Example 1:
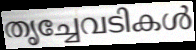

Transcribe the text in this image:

തൃച്ചേവടികൾ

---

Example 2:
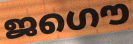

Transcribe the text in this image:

ജഗൌ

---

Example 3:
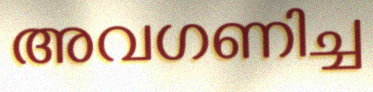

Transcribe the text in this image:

അവഗണിച്ച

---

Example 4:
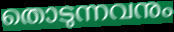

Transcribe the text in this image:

തൊടുന്നവനും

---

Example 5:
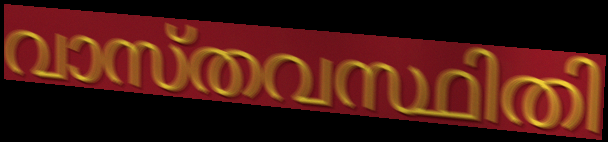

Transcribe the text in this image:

വാസ്തവസ്ഥിതി